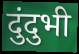
दुंदुभी